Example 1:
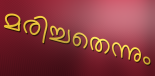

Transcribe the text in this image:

മരിച്ചതെന്നും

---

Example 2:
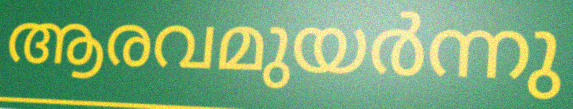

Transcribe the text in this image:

ആരവമുയർന്നു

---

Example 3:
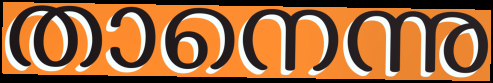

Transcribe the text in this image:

താനെന്നു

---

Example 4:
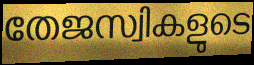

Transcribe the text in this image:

തേജസ്വികളുടെ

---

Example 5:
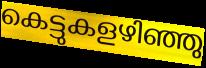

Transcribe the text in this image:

കെട്ടുകളഴിഞ്ഞു